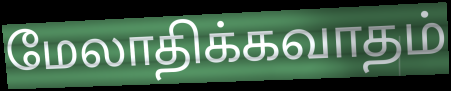
மேலாதிக்கவாதம்